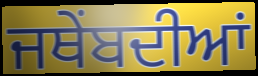
ਜਥੇਂਬਦੀਆਂ